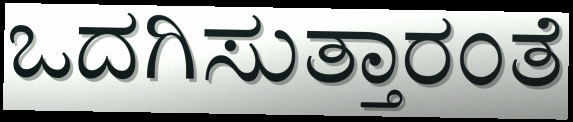
ಒದಗಿಸುತ್ತಾರಂತೆ